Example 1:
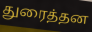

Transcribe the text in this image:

துரைத்தன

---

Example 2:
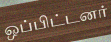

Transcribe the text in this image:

ஒப்பிட்டனர்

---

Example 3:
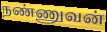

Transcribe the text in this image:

நண்ணுவன்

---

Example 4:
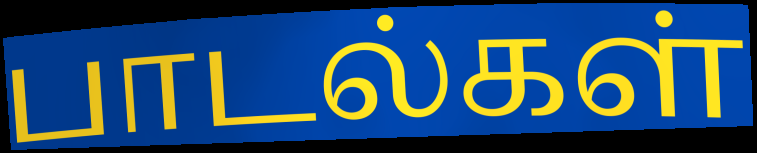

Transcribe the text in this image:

பாடல்கள்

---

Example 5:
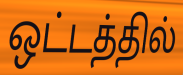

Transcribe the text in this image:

ஒட்டத்தில்